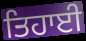
ਤਿਹਾਈ